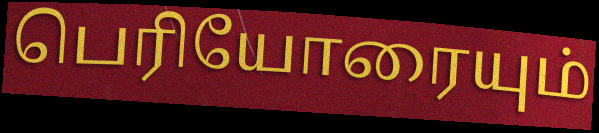
பெரியோரையும்